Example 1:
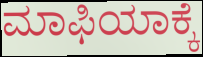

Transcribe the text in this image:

ಮಾಫಿಯಾಕ್ಕೆ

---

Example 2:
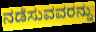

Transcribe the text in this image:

ನಡೆಸುವವರನ್ನು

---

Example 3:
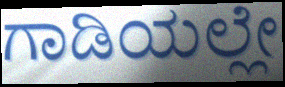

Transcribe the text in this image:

ಗಾಡಿಯಲ್ಲೇ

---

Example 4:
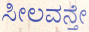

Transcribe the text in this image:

ಸೀಲವನ್ತೇ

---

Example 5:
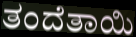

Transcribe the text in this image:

ತಂದೆತಾಯಿ